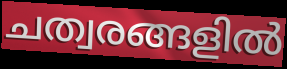
ചത്വരങ്ങളിൽ